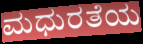
ಮಧುರತೆಯ